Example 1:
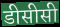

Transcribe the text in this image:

डीसीसी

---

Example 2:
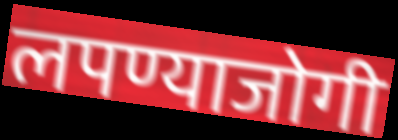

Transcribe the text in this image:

लपण्याजोगी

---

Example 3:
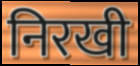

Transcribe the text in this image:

निरखी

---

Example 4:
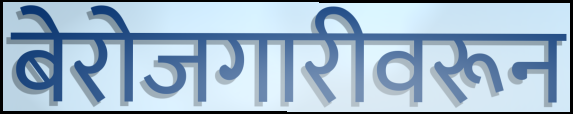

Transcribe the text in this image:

बेरोजगारीवरून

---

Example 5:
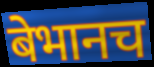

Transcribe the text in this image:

बेभानच